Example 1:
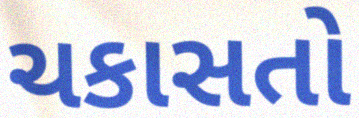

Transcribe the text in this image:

ચકાસતો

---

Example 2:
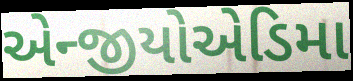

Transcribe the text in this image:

એન્જીયોએડિમા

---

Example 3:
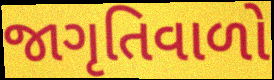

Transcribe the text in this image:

જાગૃતિવાળો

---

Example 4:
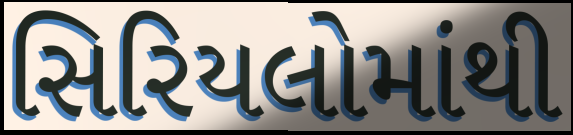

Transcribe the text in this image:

સિરિયલોમાંથી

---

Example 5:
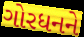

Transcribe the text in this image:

ગોરધનને